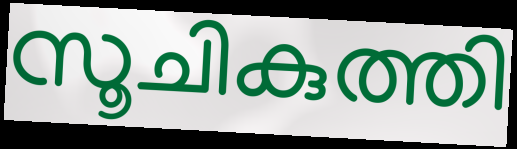
സൂചികുത്തി